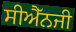
ਸੀਐੱਨਜੀ